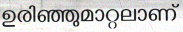
ഉരിഞ്ഞുമാറ്റലാണ്